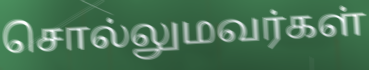
சொல்லுமவர்கள்